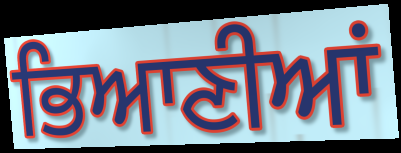
ਭਿਆਣੀਆਂ